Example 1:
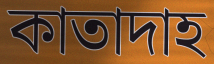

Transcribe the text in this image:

কাতাদাহ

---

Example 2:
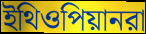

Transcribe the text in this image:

ইথিওপিয়ানরা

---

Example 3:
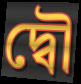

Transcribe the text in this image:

দ্বৌ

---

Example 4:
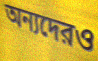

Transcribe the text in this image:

অন্যদেরও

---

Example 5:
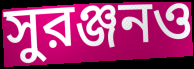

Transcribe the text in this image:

সুরঞ্জনও